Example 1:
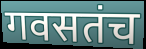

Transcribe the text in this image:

गवसतंच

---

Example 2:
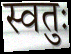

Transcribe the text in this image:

स्वतुः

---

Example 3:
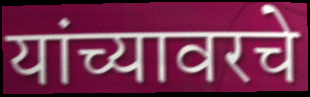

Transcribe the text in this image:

यांच्यावरचे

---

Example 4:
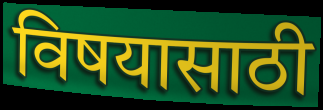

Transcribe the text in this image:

विषयासाठी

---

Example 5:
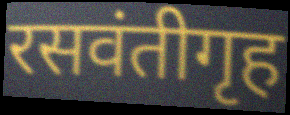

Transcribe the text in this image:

रसवंतीगृह